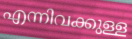
എന്നിവക്കുള്ള